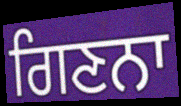
ਗਿਣਨਾ